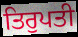
ਤਿਰੁਪਤੀ